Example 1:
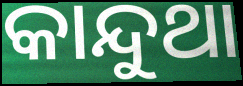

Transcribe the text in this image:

କାନ୍ଦୁଥା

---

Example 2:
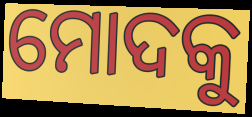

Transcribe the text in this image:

ମୋଦକୁ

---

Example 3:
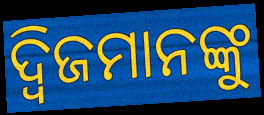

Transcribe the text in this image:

ଦ୍ଵିଜମାନଙ୍କୁ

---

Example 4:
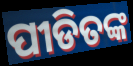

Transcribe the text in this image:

ପୀଡିତଙ୍କ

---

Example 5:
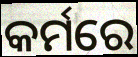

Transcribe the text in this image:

କର୍ମରେ